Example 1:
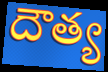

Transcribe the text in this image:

దౌత్య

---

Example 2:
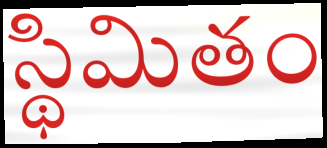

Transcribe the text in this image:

స్థిమితం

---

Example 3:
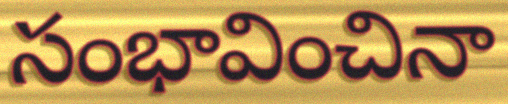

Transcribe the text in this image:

సంభావించినా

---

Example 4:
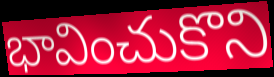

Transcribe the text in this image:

భావించుకొని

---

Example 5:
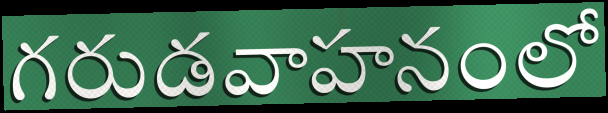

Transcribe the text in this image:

గరుడవాహనంలో